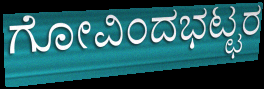
ಗೋವಿಂದಭಟ್ಟರ